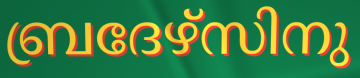
ബ്രദേഴ്സിനു